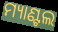
ମ୍ୟାଣ୍ଟଲ